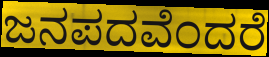
ಜನಪದವೆಂದರೆ